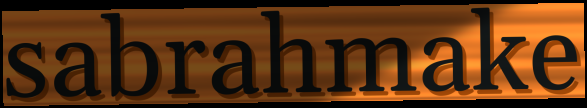
sabrahmake